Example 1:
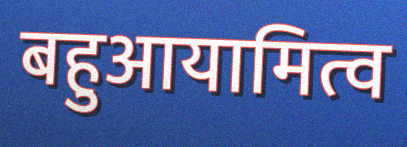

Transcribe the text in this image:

बहुआयामित्व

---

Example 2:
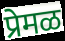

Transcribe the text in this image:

प्रेमळ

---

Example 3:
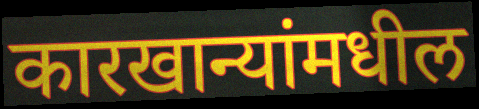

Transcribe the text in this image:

कारखान्यांमधील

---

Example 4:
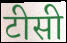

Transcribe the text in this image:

टीसी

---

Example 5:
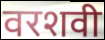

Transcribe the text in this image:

वरशवी